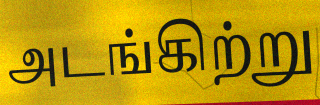
அடங்கிற்று